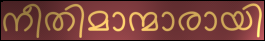
നീതിമാന്മാരായി